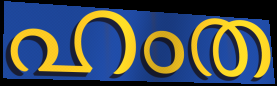
ഹംത